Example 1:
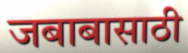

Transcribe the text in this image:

जबाबासाठी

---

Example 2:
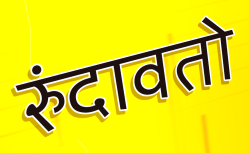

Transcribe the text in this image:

रुंदावतो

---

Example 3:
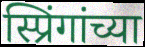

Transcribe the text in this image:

स्प्रिंगांच्या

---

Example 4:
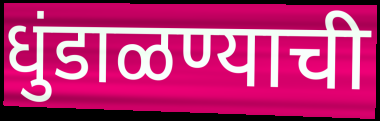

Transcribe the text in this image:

धुंडाळण्याची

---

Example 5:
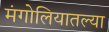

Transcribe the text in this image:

मंगोलियातल्या